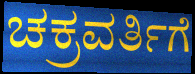
ಚಕ್ರವರ್ತಿಗೆ